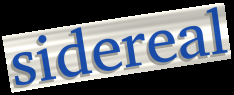
sidereal